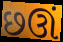
છઊં